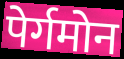
पेर्गमोन